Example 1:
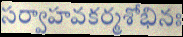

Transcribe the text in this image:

సర్వాహవకర్మశోభినః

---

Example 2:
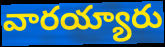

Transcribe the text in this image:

వారయ్యారు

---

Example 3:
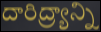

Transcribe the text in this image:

దారిద్ర్యాన్ని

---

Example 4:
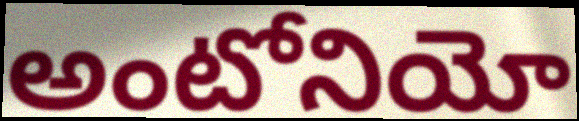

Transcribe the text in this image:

అంటోనియో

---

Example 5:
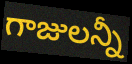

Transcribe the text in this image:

గాజులన్నీ